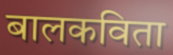
बालकविता